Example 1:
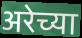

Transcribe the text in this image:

अरेच्या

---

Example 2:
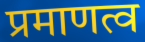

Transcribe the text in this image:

प्रमाणत्व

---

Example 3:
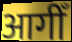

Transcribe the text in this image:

आगीँ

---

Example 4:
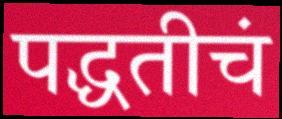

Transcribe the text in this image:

पद्धतीचं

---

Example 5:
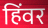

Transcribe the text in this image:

हिंवर